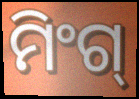
ମିଂଗ୍